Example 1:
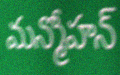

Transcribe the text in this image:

మన్మోహన్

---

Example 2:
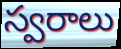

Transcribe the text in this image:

స్వరాలు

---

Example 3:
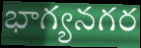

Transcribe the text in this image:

భాగ్యనగర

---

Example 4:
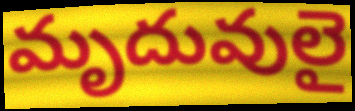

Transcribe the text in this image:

మృదువులై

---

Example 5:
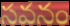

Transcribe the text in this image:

సవనం